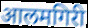
आलमगिरी